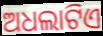
ଅଧଲାଟିଏ